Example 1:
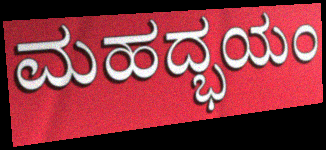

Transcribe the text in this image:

ಮಹದ್ಭಯಂ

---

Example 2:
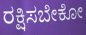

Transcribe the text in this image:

ರಕ್ಷಿಸಬೇಕೋ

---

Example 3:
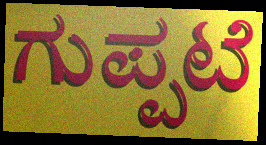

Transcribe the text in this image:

ಗುಪ್ಪಟೆ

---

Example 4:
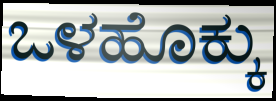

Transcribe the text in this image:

ಒಳಹೊಕ್ಕು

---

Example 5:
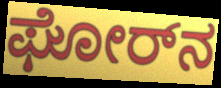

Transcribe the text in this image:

ಘೋರ್‌ನ